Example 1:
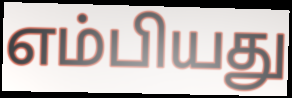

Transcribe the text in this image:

எம்பியது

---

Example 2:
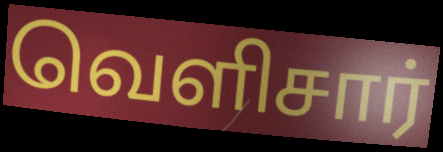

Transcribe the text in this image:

வெளிசார்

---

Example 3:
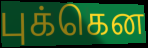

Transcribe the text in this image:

புக்கென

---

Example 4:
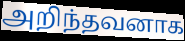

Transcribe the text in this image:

அறிந்தவனாக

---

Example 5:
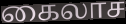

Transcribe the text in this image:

கைலாச